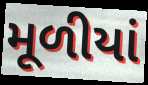
મૂળીયાં